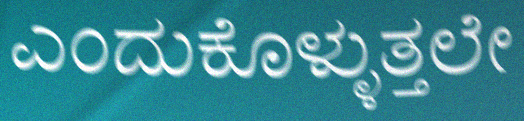
ಎಂದುಕೊಳ್ಳುತ್ತಲೇ